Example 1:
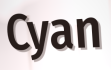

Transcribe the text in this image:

Cyan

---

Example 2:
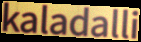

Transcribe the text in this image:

kaladalli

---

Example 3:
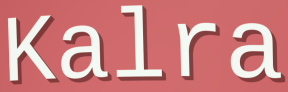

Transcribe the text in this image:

Kalra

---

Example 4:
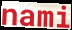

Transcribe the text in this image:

nami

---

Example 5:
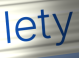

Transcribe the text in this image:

lety